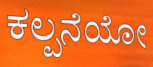
ಕಲ್ಪನೆಯೋ